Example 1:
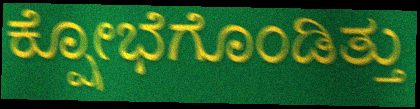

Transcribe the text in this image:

ಕ್ಷೋಭೆಗೊಂಡಿತ್ತು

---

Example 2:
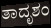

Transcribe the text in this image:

ತಾದೃಶಂ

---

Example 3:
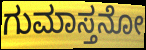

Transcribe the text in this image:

ಗುಮಾಸ್ತನೋ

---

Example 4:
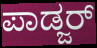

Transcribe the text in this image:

ಪಾಡ್ಜರ್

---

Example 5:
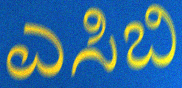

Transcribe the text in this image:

ಎಸಿಬಿ